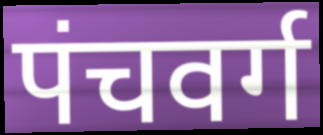
पंचवर्ग